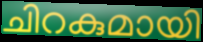
ചിറകുമായി